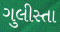
ગુલીસ્તા